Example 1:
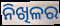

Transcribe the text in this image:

ନିଖିଳର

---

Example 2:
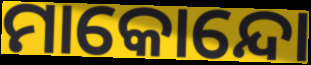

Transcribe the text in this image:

ମାକୋନ୍ଦୋ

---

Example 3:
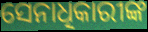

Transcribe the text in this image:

ସେନାଧିକାରୀଙ୍କ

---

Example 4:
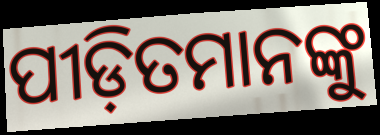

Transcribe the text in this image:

ପୀଡ଼ିତମାନଙ୍କୁ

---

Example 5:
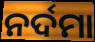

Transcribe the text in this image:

ନର୍ଦମା